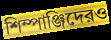
শিম্পাঞ্জিদেরও